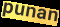
punan